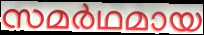
സമർഥമായ